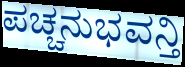
ಪಚ್ಚನುಭವನ್ತಿ